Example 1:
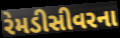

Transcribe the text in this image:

રેમડીસીવરના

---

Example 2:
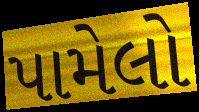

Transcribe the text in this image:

પામેલો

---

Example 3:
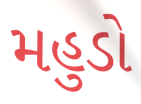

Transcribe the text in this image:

મહુડો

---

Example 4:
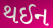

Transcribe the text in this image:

થઈન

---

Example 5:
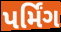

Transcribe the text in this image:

પર્મિંગ